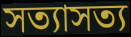
সত্যাসত্য